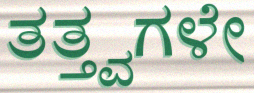
ತತ್ತ್ವಗಳೇ